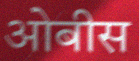
ओबीस